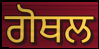
ਗੋਥਲ